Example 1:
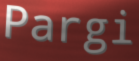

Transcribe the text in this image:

Pargi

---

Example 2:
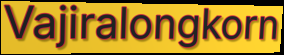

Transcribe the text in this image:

Vajiralongkorn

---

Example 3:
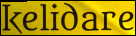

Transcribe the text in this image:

kelidare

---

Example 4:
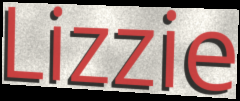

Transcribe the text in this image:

Lizzie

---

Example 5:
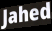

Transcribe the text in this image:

Jahed